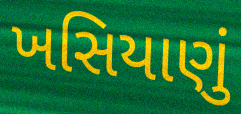
ખસિયાણું